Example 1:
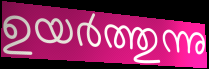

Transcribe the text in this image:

ഉയർത്തുന്നു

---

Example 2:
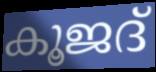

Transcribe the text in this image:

കൂജദ്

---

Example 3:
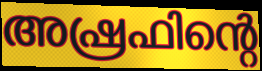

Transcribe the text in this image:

അഷ്രഫിന്റെ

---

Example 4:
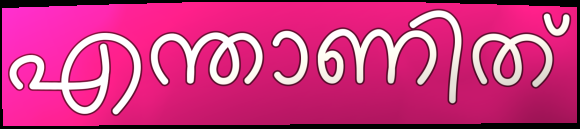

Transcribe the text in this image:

എന്താണിത്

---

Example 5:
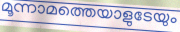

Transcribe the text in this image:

മൂന്നാമത്തെയാളുടേയും